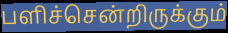
பளிச்சென்றிருக்கும்